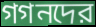
গগনদের